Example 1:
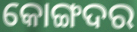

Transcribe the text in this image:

କୋଙ୍ଗଦର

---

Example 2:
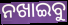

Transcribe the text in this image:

ନଖାଇବୁ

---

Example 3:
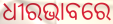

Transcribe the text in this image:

ଧୀରଭାବରେ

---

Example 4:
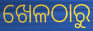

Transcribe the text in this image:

ଖେଳଠାରୁ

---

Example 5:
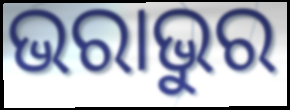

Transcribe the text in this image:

ଭରାଭୁର